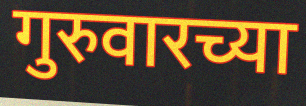
गुरुवारच्या